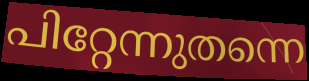
പിറ്റേന്നുതന്നെ